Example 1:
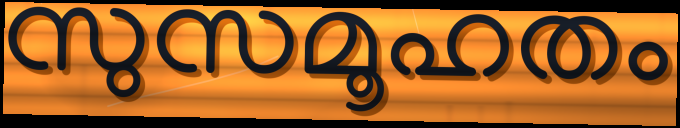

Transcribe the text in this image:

സുസമൂഹതം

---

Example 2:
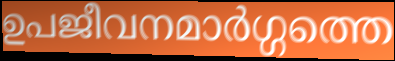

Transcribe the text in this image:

ഉപജീവനമാർഗ്ഗത്തെ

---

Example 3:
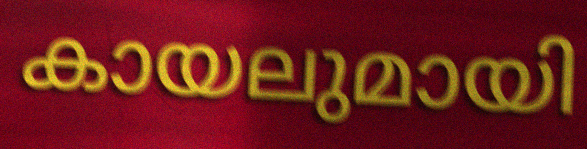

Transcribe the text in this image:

കായലുമായി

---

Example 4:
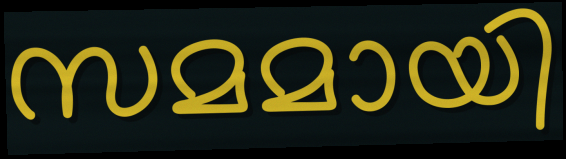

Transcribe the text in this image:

സമമായി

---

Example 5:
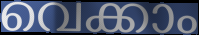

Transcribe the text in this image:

വെക്കാം